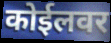
कोईलवर